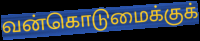
வன்கொடுமைக்குக்